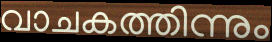
വാചകത്തിന്നും